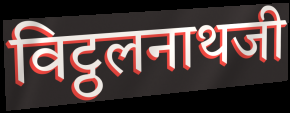
विट्ठलनाथजी